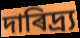
দাৰিদ্ৰ্য